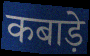
कबाड़े